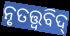
ନୃତତ୍ତ୍ଵବିଦ୍